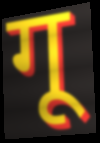
गू